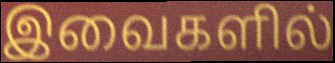
இவைகளில்